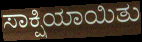
ಸಾಕ್ಷಿಯಾಯಿತು